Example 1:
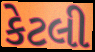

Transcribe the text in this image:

કેટલી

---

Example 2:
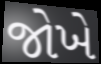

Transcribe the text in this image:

જોખે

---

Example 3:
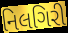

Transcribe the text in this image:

નિલગિરી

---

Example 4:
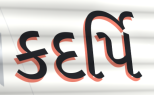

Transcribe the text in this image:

કદર્પિ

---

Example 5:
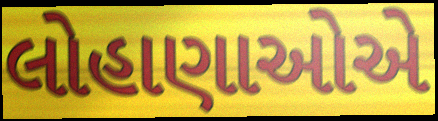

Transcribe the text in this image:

લોહાણાઓએ